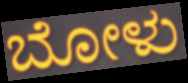
ಬೋಳು